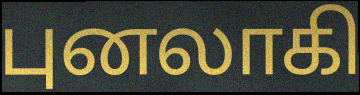
புனலாகி